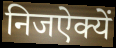
निजऐक्यें